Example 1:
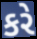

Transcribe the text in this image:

કરે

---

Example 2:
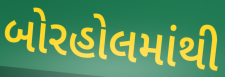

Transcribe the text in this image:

બોરહોલમાંથી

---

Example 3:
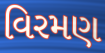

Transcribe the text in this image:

વિરમણ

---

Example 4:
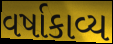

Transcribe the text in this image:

વર્ષાકાવ્ય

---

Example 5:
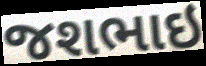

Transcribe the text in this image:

જશભાઇ